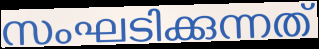
സംഘടിക്കുന്നത്